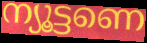
ന്യൂട്ടണെ